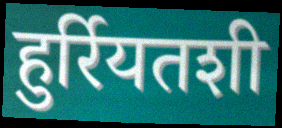
हुर्रियतशी